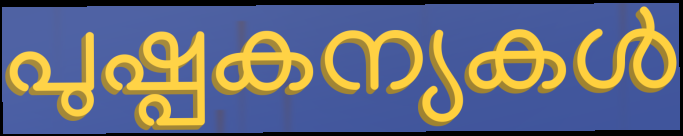
പുഷ്പകന്യകൾ